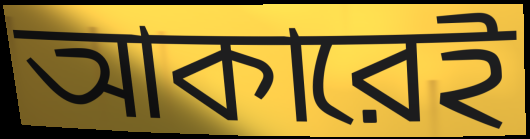
আকারেই